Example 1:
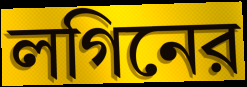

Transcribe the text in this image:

লগিনের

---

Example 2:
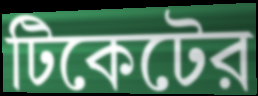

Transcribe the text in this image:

টিকেটের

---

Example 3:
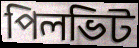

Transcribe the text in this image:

পিলভিট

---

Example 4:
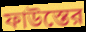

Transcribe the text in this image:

ফাউস্তের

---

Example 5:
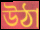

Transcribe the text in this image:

উঠা